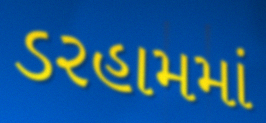
ડરહામમાં